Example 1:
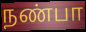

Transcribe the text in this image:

நண்பா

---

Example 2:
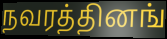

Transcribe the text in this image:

நவரத்தினங்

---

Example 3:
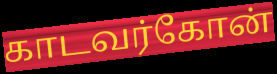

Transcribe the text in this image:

காடவர்கோன்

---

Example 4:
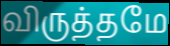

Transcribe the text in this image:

விருத்தமே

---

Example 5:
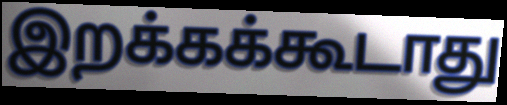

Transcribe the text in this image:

இறக்கக்கூடாது